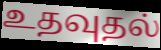
உதவுதல்